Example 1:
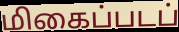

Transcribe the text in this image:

மிகைப்படப்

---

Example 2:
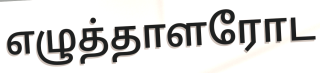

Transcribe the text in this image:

எழுத்தாளரோட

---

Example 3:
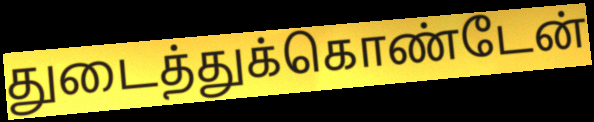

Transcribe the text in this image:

துடைத்துக்கொண்டேன்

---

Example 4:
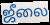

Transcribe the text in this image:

ஜீலை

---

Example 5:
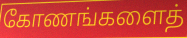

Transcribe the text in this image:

கோணங்களைத்